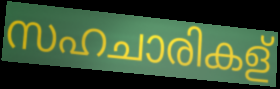
സഹചാരികള്